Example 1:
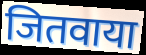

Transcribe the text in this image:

जितवाया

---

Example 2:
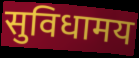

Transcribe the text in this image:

सुविधामय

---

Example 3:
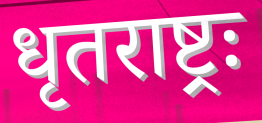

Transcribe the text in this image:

धृतराष्ट्रः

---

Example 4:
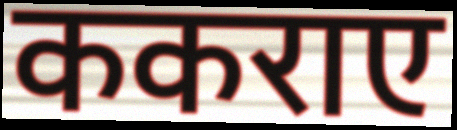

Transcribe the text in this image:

ककराए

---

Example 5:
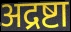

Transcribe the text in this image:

अद्रष्टा